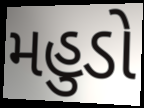
મહુડો